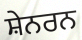
ਸ਼ੇਨਰਨ